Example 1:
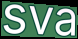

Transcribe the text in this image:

sva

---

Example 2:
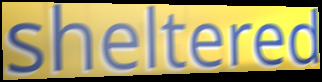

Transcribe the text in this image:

sheltered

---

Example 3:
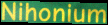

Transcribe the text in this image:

Nihonium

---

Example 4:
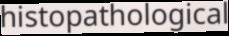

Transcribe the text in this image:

histopathological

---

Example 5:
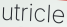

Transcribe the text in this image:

utricle